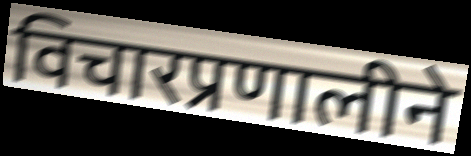
विचारप्रणालीने